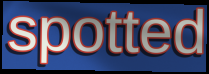
spotted